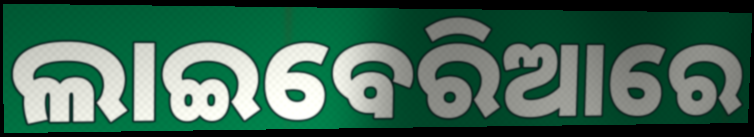
ଲାଇବେରିଆରେ